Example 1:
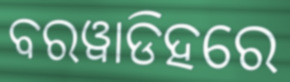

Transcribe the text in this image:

ବରୱାଡିହରେ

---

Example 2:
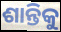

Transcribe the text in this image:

ଶାନ୍ତିକୁ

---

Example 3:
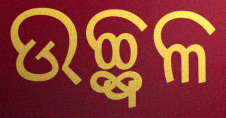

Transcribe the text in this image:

ଉଚ୍ଛ୍ୱଳ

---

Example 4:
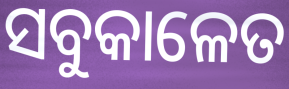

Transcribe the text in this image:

ସବୁକାଳେତ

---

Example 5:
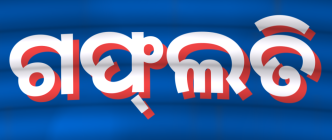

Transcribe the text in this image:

ଗଫ୍‌ଲତି